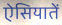
ऐसियातें